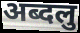
अब्दलु